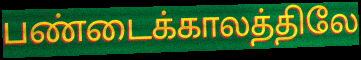
பண்டைக்காலத்திலே